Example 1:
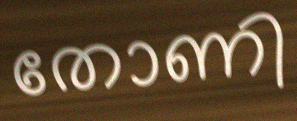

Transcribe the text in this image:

തോണി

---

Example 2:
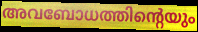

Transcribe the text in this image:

അവബോധത്തിന്റെയും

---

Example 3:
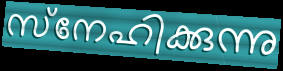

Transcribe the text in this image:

സ്‌നേഹിക്കുന്നു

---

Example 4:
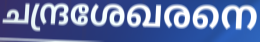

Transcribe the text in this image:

ചന്ദ്രശേഖരനെ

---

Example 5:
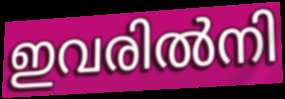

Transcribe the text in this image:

ഇവരിൽനി